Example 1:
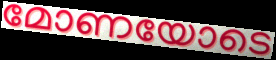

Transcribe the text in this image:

മോണയോടെ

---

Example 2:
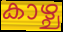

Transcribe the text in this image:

കാഴ്ച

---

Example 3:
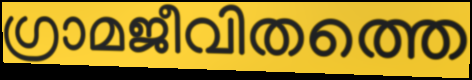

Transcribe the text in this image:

ഗ്രാമജീവിതത്തെ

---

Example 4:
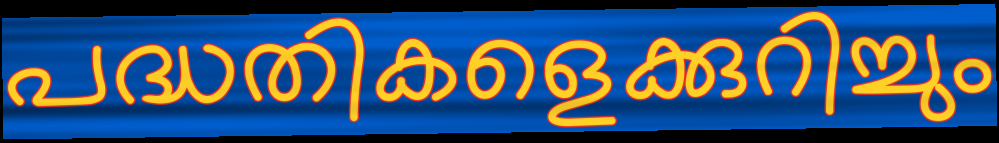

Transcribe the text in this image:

പദ്ധതികളെക്കുറിച്ചും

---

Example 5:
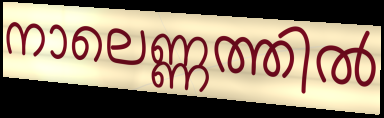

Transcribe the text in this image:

നാലെണ്ണത്തിൽ